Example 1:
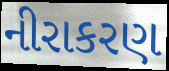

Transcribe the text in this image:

નીરાકરણ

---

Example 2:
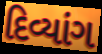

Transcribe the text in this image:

દિવ્યાંગ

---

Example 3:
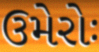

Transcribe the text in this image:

ઉમેરોઃ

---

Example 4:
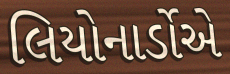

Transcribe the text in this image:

લિયોનાર્ડોએ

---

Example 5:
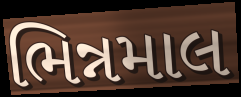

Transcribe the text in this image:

ભિન્નમાલ